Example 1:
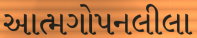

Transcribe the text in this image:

આત્મગોપનલીલા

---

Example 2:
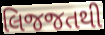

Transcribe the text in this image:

લિજજતથી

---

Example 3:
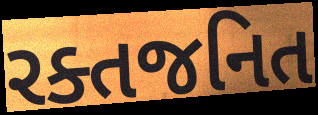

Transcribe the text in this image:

રક્તજનિત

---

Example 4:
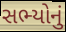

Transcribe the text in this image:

સભ્યોનું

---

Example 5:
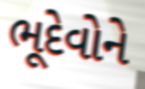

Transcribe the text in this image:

ભૂદેવોને